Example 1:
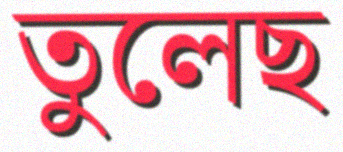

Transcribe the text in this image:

তুলেছ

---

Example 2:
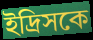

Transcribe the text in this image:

ইদ্রিসকে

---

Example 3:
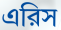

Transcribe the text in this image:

এরিস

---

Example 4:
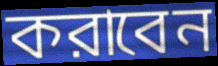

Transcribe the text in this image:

করাবেন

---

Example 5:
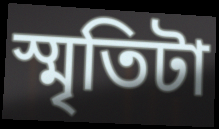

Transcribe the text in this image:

স্মৃতিটা